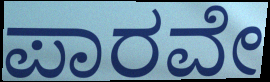
ಪಾರವೇ